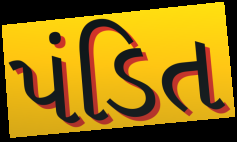
પંડિત